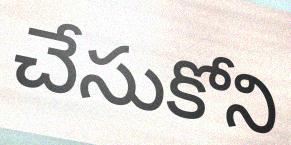
చేసుకోని